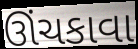
ઊંચકાવા